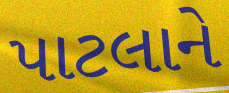
પાટલાને